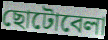
ছোটোবেলা